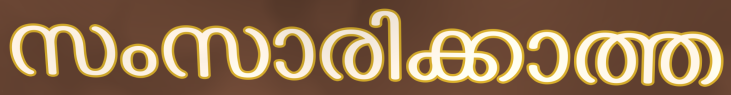
സംസാരിക്കാത്ത